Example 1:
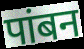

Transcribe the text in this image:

पांबन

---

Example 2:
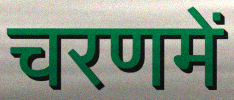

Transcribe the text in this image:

चरणमें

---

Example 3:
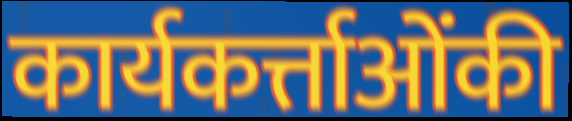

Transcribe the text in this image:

कार्यकर्त्ताओंकी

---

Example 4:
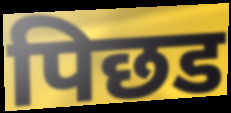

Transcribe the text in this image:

पिछड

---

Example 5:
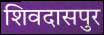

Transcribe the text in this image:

शिवदासपुर